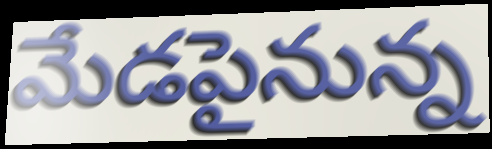
మేడపైనున్న